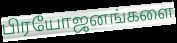
பிரயோஜனங்களை